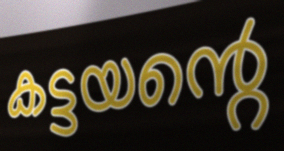
കട്ടയന്റെ